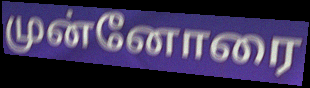
முன்னோரை